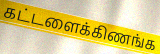
கட்டளைக்கிணங்க